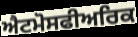
ਐਟਮੋਸਫੀਅਰਿਕ